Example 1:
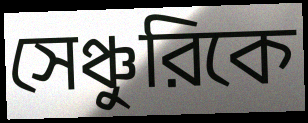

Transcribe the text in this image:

সেঞ্চুরিকে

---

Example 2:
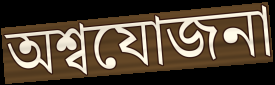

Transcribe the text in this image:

অশ্বযোজনা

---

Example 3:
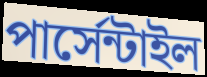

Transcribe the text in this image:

পার্সেন্টাইল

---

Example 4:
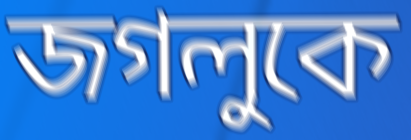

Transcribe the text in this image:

জগলুকে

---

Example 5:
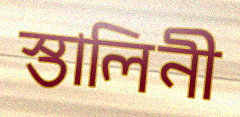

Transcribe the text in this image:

স্তালিনী